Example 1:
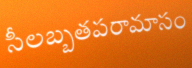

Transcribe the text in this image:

సీలబ్బతపరామాసం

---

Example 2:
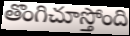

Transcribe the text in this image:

తొంగిచూస్తోంది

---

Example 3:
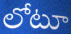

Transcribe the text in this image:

లోటూ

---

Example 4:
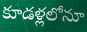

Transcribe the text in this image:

కూడళ్లలోనూ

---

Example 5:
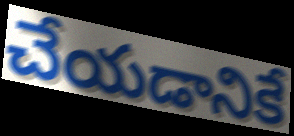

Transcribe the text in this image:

చేయడానికే